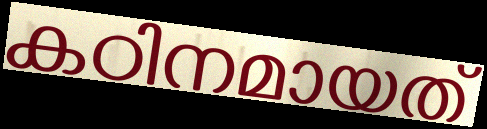
കഠിനമായത്